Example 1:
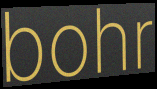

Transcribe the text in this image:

bohr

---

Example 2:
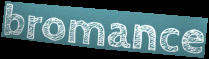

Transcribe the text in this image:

bromance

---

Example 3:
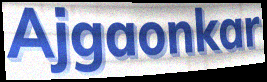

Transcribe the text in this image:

Ajgaonkar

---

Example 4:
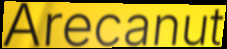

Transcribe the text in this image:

Arecanut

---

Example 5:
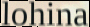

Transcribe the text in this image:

lohina